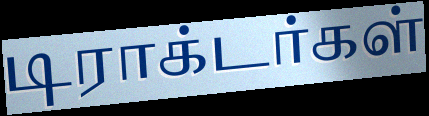
டிராக்டர்கள்